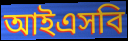
আইএসবি